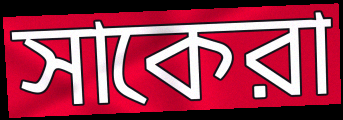
সাকেরা